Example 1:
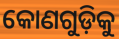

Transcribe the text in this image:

କୋଣଗୁଡ଼ିକୁ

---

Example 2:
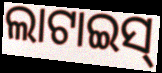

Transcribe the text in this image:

ଲାଟାଇସ୍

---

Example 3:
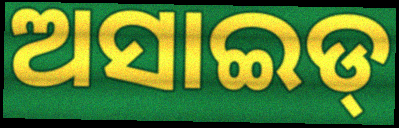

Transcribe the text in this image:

ଅସାଇଡ୍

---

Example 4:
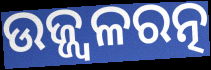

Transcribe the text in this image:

ଉଜ୍ଜ୍ୱଳରତ୍ନ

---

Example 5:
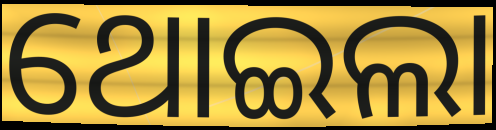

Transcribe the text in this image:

ଥୋଇଲା